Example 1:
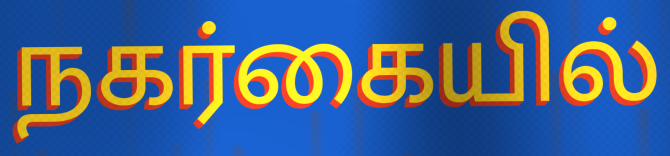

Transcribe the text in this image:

நகர்கையில்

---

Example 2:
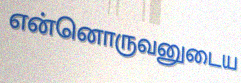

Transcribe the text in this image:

என்னொருவனுடைய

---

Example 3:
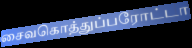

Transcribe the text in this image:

சைவகொத்துப்பரோட்டா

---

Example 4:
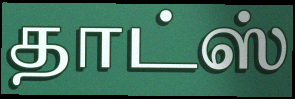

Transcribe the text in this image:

தாட்ஸ்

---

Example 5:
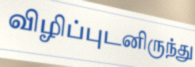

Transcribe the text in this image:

விழிப்புடனிருந்து